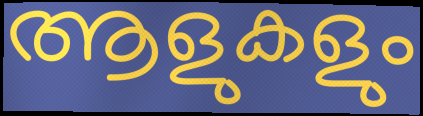
ആളുകളും